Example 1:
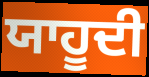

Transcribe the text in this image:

ਯਾਹੂਦੀ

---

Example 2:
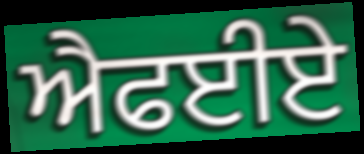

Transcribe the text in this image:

ਐਫਈਏ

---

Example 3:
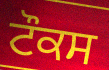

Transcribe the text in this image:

ਟੌਕਸ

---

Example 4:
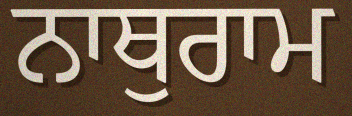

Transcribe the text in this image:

ਨਾਥੁਰਾਮ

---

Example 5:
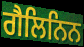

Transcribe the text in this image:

ਗੈਲਿਨਿਨ